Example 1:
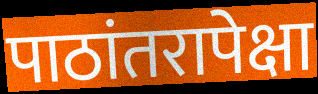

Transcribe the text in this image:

पाठांतरापेक्षा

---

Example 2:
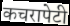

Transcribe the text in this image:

कचरापेटी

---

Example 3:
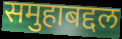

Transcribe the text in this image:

समुहाबद्दल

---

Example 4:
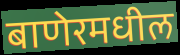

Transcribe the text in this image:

बाणेरमधील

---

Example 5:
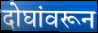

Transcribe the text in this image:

दोघांवरून